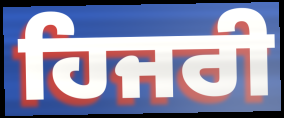
ਹਿਜਰੀ